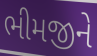
ભીમજીને